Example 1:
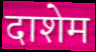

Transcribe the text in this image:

दाशेम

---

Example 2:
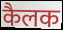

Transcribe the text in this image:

कैलक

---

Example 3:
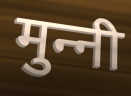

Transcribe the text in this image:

मुन्नी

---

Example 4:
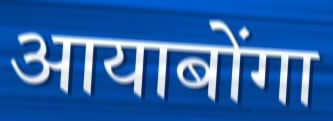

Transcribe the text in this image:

आयाबोंगा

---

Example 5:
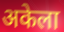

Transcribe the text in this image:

अकेला